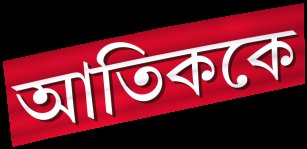
আতিককে